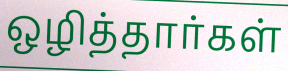
ஒழித்தார்கள்